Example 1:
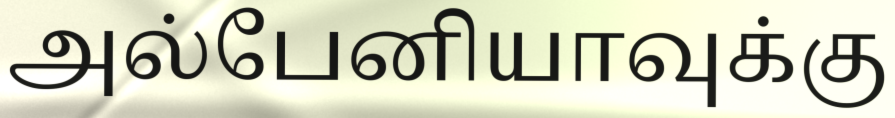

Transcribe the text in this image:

அல்பேனியாவுக்கு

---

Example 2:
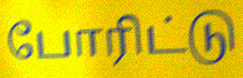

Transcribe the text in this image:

போரிட்டு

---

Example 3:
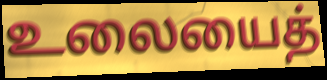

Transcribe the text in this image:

உலையைத்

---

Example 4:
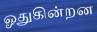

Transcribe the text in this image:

ஓதுகின்றன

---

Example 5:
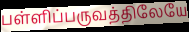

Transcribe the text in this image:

பள்ளிப்பருவத்திலேயே